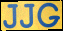
JJG